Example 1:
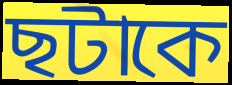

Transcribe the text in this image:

ছটাকে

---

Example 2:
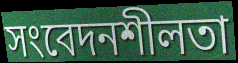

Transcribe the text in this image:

সংবেদনশীলতা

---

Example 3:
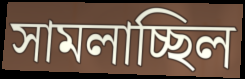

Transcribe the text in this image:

সামলাচ্ছিল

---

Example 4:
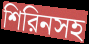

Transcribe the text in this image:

শিরিনসহ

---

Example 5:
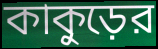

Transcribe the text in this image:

কাকুড়ের